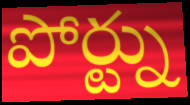
పోర్ట్ను